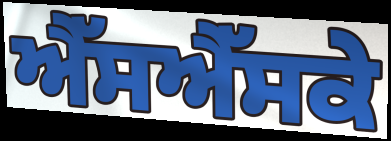
ਐੱਸਐੱਸਕੇ